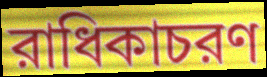
রাধিকাচরণ